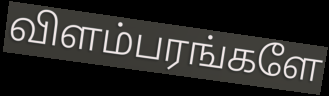
விளம்பரங்களே